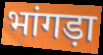
भांगड़ा